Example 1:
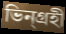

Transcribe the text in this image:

ভিন্গ্রহী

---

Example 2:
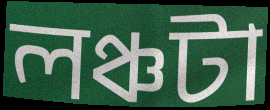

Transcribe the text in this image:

লঞ্চটা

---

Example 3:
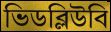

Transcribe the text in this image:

ভিডব্লিউবি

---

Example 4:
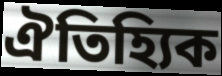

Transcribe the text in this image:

ঐতিহ্যিক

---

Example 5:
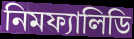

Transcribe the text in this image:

নিমফ্যালিডি